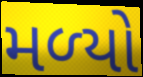
મળ્‍યો